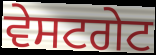
ਵੇਸਟਗੇਟ